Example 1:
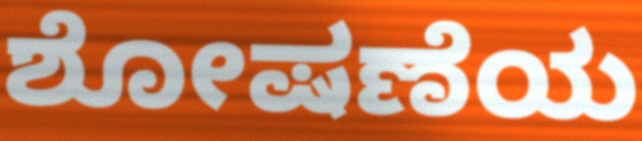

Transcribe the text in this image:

ಶೋಷಣೆಯ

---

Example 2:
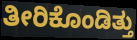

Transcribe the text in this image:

ತೀರಿಕೊಂಡಿತ್ತು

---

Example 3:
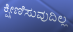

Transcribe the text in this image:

ಕ್ಷೀಣಿಸುವುದಿಲ್ಲ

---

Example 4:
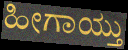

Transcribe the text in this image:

ಹೀಗಾಯ್ತು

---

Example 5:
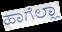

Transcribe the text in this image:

ಹಾಗೆಲ್ಲಾ